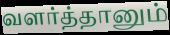
வளர்த்தானும்